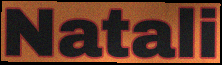
Natali